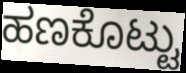
ಹಣಕೊಟ್ಟು